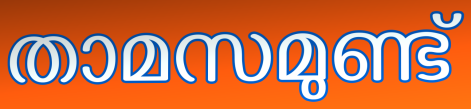
താമസമുണ്ട്